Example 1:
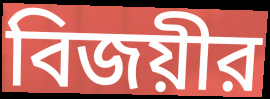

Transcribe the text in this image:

বিজয়ীর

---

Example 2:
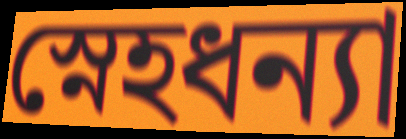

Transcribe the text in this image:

স্নেহধন্যা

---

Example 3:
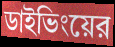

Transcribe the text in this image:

ডাইভিংয়ের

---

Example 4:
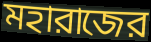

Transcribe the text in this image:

মহারাজের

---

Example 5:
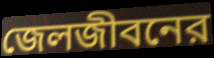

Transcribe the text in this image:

জেলজীবনের